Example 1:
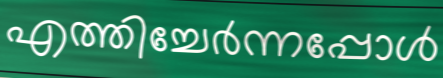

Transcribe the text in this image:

എത്തിച്ചേർന്നപ്പോൾ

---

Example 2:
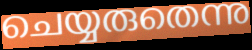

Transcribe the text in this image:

ചെയ്യരുതെന്നു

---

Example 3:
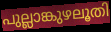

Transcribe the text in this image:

പുല്ലാങ്കുഴലൂതി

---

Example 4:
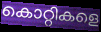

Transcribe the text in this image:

കൊറ്റികളെ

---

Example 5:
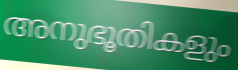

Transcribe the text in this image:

അനുഭൂതികളും